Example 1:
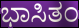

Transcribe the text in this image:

ಭಾಸಿತಂ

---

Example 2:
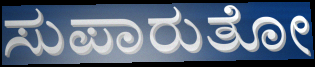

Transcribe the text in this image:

ಸುಪಾರುತೋ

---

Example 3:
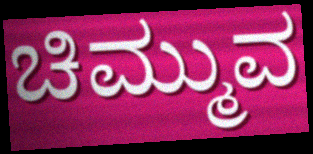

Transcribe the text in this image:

ಚಿಮ್ಮುವ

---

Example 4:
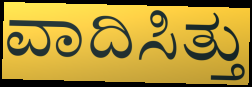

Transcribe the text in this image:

ವಾದಿಸಿತ್ತು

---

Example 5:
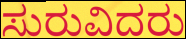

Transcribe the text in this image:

ಸುರುವಿದರು